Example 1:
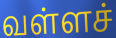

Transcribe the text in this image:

வள்ளச்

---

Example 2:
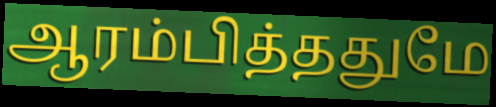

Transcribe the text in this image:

ஆரம்பித்ததுமே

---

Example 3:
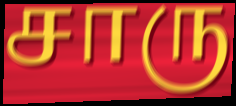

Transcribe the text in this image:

சாரு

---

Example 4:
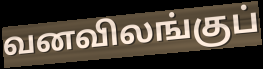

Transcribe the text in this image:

வனவிலங்குப்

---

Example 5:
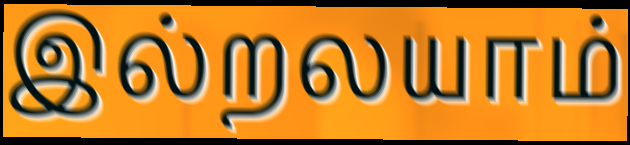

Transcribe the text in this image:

இல்றலயாம்